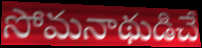
సోమనాథుడిచే